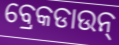
ବ୍ରେକଡାଉନ୍